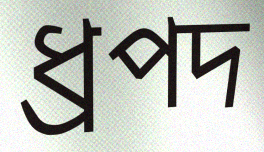
ধ্রপদ